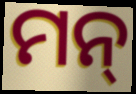
ମନ୍